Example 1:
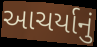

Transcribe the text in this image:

આચર્યાનું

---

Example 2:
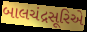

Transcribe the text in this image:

બાલચંદ્રસૂરિએ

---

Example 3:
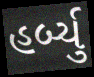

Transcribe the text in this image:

હર્બ્યુ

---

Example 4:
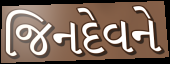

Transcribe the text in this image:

જિનદેવને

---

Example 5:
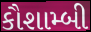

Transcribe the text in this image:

કૌશામ્બી